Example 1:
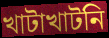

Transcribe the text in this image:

খাটাখাটনি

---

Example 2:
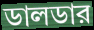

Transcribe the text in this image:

ডালডার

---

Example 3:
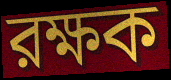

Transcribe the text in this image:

রক্ষক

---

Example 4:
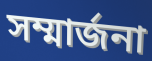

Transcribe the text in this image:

সম্মার্জনা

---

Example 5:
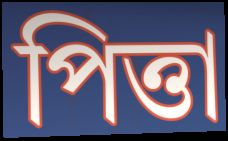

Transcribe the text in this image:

পিত্তা